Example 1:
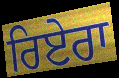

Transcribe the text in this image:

ਰਿਏਰਾ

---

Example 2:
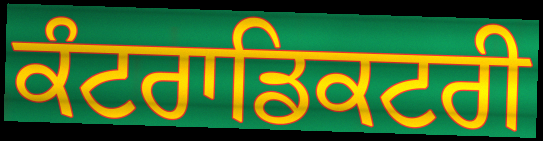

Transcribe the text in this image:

ਕੰਟਰਾਡਿਕਟਰੀ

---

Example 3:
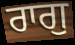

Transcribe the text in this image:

ਰਾਗੁ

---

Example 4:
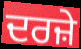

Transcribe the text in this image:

ਦਰਜ਼ੇ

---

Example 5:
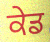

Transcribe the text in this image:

ਕੇਡ